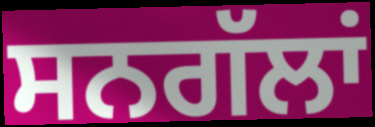
ਸਨਗੱਲਾਂ